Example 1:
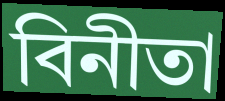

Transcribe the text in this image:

বিনীতা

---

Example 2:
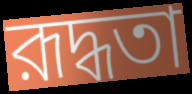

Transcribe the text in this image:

রূদ্ধতা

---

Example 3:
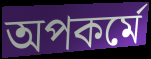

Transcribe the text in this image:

অপকর্মে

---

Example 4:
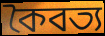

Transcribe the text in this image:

কৈবত্য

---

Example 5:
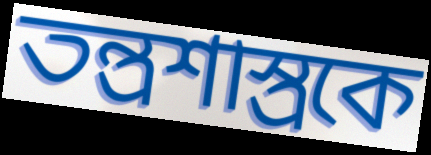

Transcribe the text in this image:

তন্ত্রশাস্ত্রকে